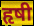
हृषी